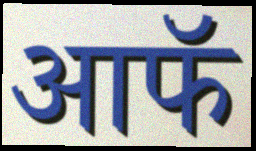
आफॅ